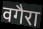
वगैरा